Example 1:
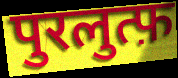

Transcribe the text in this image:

पुरलुत्फ़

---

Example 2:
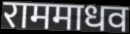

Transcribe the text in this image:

राममाधव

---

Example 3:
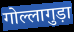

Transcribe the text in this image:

गोल्लागुड़ा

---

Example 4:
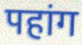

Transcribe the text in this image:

पहांग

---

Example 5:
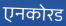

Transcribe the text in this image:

एनकोरड